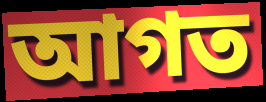
আগত